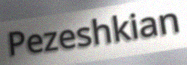
Pezeshkian